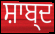
ਸ਼ਾਬ੍ਦ